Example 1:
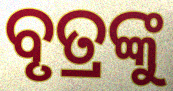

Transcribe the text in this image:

ବୃତ୍ରଙ୍କୁ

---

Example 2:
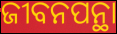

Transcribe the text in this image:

ଜୀବନପନ୍ଥା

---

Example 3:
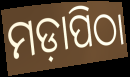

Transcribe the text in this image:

ମଡ଼ାପିଠା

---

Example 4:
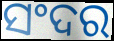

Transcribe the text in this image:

ସଂଦର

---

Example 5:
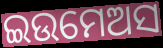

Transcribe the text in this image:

ଇଉମେଅସ